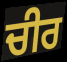
ਚੀਰ